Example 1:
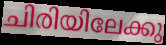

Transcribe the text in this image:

ചിരിയിലേക്കു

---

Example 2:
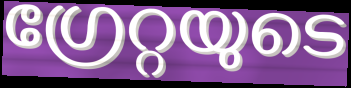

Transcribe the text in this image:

ഗ്രേറ്റയുടെ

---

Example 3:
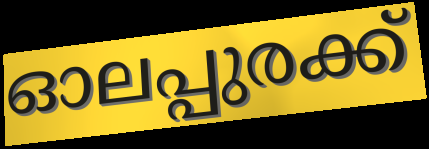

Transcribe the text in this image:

ഓലപ്പുരക്ക്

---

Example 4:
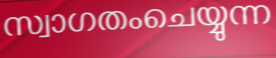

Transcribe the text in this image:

സ്വാഗതംചെയ്യുന്ന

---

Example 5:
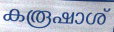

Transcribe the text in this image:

കരൂഷാശ്